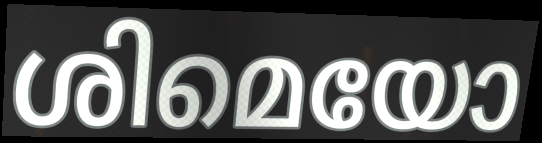
ശിമെയോ